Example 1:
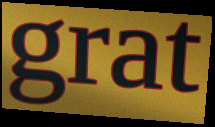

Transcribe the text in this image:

grat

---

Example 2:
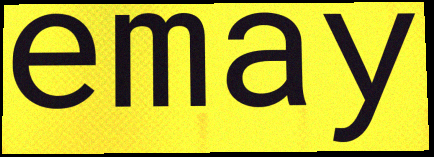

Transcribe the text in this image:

emay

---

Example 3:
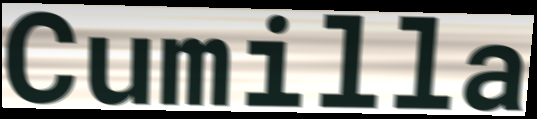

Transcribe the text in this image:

Cumilla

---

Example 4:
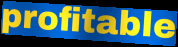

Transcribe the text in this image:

profitable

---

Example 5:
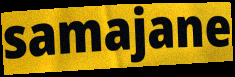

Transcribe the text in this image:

samajane